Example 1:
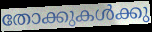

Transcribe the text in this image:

തോക്കുകൾക്കു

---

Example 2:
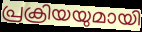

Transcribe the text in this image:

പ്രക്രിയയുമായി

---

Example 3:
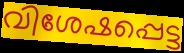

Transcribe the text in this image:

വിശേഷപ്പെട്ട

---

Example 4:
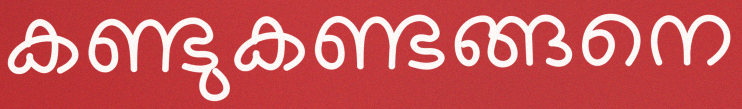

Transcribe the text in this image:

കണ്ടുകണ്ടങ്ങനെ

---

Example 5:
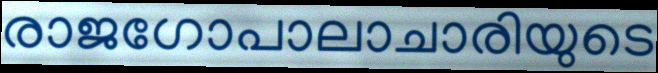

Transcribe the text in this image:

രാജഗോപാലാചാരിയുടെ